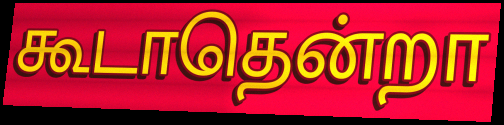
கூடாதென்றா